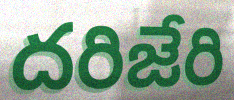
దరిజేరి